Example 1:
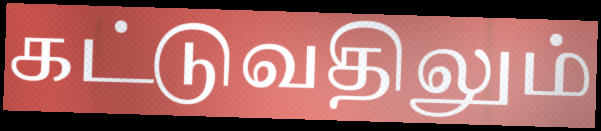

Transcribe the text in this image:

கட்டுவதிலும்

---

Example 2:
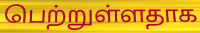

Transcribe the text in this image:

பெற்றுள்ளதாக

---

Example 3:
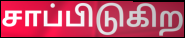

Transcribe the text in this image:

சாப்பிடுகிற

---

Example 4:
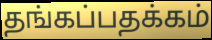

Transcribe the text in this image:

தங்கப்பதக்கம்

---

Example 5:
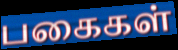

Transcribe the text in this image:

பகைகள்